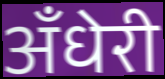
अँधेरी